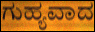
ಗುಹ್ಯವಾದ